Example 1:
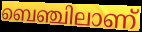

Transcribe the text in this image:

ബെഞ്ചിലാണ്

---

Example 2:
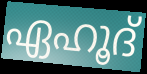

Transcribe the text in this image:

ഏഹൂദ്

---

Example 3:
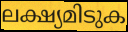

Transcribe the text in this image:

ലക്ഷ്യമിടുക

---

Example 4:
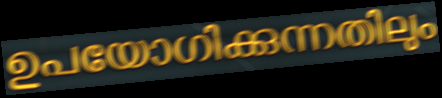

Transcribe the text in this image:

ഉപയോഗിക്കുന്നതിലും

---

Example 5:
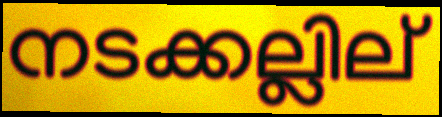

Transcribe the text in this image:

നടക്കല്ലില്